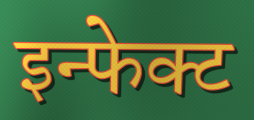
इन्फेक्ट